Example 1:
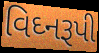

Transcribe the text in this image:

વિઘ્નરૂપી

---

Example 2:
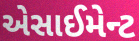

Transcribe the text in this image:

એસાઈમેન્ટ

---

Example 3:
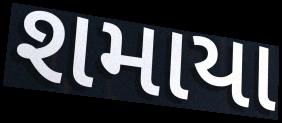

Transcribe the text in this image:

શમાયા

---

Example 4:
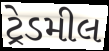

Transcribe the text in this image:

ટ્રેડમીલ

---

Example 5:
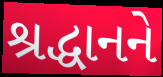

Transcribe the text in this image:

શ્રદ્ધાનને